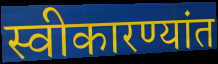
स्वीकारण्यांत